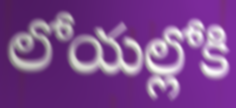
లోయల్లోకి